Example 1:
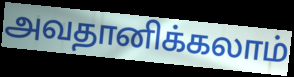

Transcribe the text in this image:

அவதானிக்கலாம்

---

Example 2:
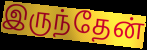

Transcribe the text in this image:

இருந்தேன்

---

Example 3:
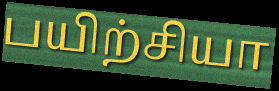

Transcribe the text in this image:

பயிற்சியா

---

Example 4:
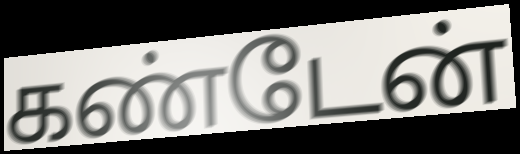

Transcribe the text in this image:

கண்டேன்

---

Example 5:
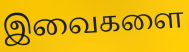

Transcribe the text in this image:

இவைகளை